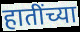
हातींच्या